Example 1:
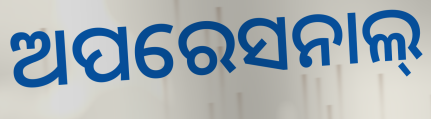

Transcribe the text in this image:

ଅପରେସନାଲ୍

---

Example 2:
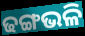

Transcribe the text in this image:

ଢଙ୍ଗଭଳି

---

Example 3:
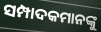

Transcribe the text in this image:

ସମ୍ପାଦକମାନଙ୍କୁ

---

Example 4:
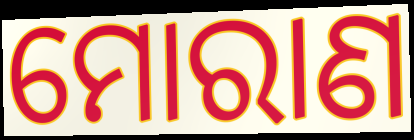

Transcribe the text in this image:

ମୋରାଣ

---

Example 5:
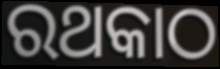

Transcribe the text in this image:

ରଥକାଠ